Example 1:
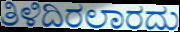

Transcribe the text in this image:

ತಿಳಿದಿರಲಾರದು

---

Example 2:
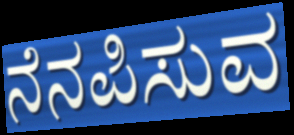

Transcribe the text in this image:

ನೆನಪಿಸುವ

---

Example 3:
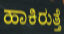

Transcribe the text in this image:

ಹಾಕಿರುತ್ತೆ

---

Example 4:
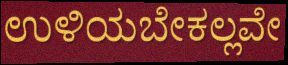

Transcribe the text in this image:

ಉಳಿಯಬೇಕಲ್ಲವೇ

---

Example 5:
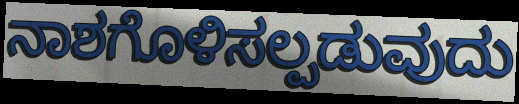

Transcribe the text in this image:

ನಾಶಗೊಳಿಸಲ್ಪಡುವುದು